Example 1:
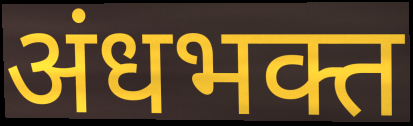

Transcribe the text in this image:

अंधभक्त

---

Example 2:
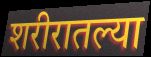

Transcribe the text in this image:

शरीरातल्या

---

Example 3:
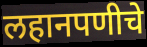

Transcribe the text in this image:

लहानपणीचे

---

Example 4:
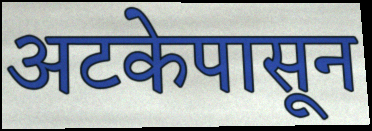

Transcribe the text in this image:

अटकेपासून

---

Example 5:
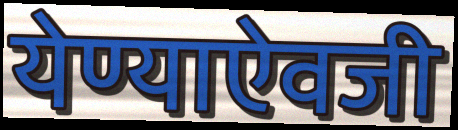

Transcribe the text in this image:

येण्याऐवजी